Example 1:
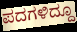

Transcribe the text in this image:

ಪದಗಳಿದ್ದೂ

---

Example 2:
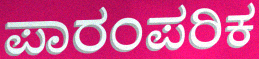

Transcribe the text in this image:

ಪಾರಂಪರಿಕ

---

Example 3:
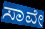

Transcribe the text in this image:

ಸಾವೇ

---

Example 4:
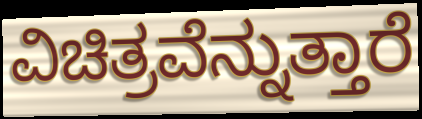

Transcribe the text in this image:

ವಿಚಿತ್ರವೆನ್ನುತ್ತಾರೆ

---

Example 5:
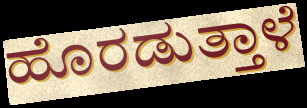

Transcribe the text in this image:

ಹೊರಡುತ್ತಾಳೆ